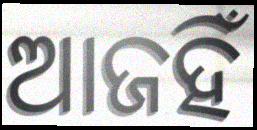
ଆଜହିଁ